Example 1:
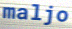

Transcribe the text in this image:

maljo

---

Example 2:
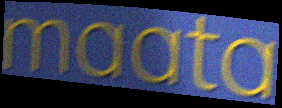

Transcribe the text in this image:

maata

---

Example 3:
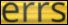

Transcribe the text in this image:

errs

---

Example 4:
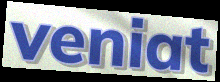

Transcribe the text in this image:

veniat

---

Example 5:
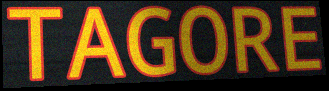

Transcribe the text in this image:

TAGORE